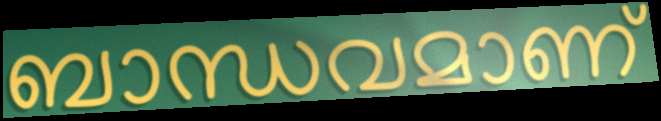
ബാന്ധവമാണ്